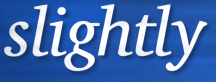
slightly